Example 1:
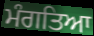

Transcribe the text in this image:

ਮੰਗਤਿਆ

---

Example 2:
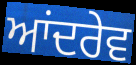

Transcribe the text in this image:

ਆਂਦਰੇਵ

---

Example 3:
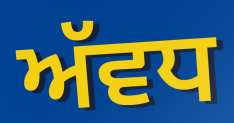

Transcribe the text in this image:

ਅੱਵਧ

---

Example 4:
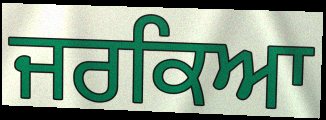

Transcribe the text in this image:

ਜਰਕਿਆ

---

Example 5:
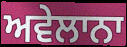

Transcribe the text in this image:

ਅਵੇਲਾਨਾ